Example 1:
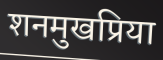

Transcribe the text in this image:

शनमुखप्रिया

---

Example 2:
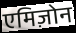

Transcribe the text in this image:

एमिज़ोन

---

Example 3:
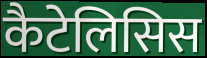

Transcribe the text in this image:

कैटेलिसिस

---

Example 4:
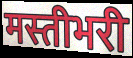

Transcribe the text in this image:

मस्तीभरी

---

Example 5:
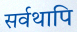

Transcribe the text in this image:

सर्वथापि